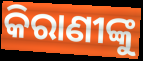
କିରାଣୀଙ୍କୁ